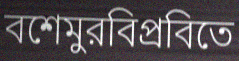
বশেমুরবিপ্রবিতে